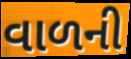
વાળની